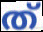
ത്